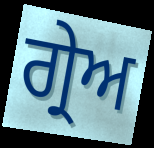
ਗ੍ਰੇਅ